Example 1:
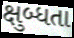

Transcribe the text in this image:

ક્ષુબ્ધતા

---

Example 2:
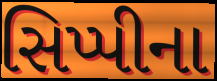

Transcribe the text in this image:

સિપ્પીના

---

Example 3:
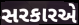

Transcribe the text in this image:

સરકારએ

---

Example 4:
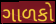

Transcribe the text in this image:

ગાળકો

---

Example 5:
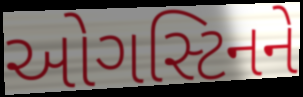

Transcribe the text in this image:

ઓગસ્ટિનને